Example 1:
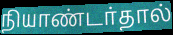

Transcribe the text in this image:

நியாண்டர்தால்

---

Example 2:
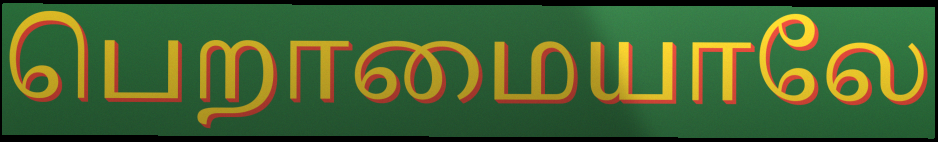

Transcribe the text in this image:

பெறாமையாலே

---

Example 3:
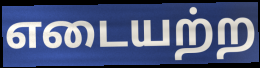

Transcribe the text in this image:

எடையற்ற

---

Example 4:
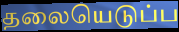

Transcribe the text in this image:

தலையெடுப்ப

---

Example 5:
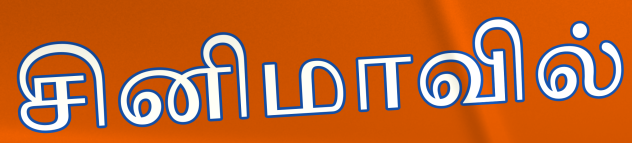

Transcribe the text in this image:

சினிமாவில்